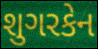
શુગરકેન